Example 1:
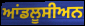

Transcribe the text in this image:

ਆਂਡਲੂਸੀਅਨ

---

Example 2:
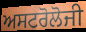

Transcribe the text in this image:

ਅਸਟਰੋਲੋਜੀ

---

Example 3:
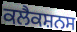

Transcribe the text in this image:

ਕਲੈਕਸ਼ਨਸ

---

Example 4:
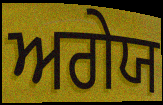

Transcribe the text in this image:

ਅਗੇਯ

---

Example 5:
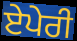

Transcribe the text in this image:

ਏਪੇਰੀ